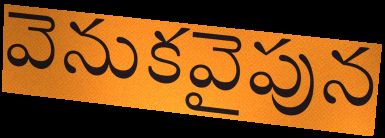
వెనుకవైపున